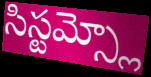
సిస్టమ్స్లో